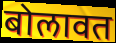
बोलावत